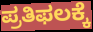
ಪ್ರತಿಫಲಕ್ಕೆ